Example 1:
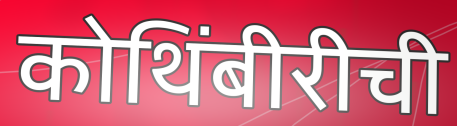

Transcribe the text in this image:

कोथिंबीरीची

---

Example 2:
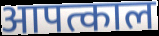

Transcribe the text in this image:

आपत्काल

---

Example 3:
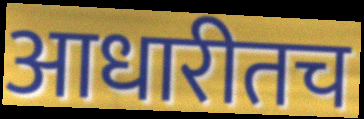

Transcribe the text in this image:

आधारीतच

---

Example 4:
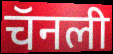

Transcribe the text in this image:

चॅनली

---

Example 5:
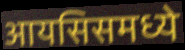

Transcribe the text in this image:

आयसिसमध्ये